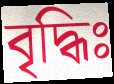
বৃদ্ধিঃ